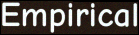
Empirical